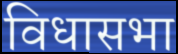
विधासभा